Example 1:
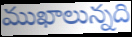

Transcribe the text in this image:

ముఖాలున్నది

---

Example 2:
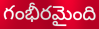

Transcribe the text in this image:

గంభీరమైంది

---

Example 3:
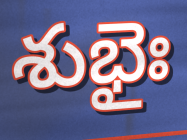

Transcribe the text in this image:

శుభైః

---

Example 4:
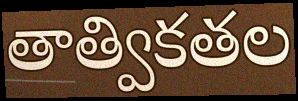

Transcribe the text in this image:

తాత్వికతల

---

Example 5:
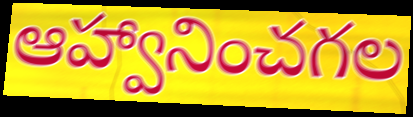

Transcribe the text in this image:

ఆహ్వానించగల